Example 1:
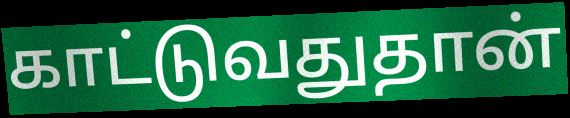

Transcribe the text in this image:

காட்டுவதுதான்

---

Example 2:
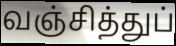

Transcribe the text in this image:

வஞ்சித்துப்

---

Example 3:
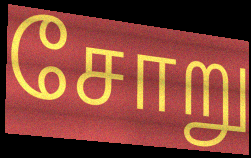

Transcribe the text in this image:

சோறு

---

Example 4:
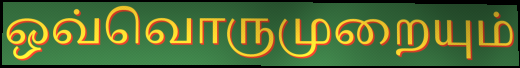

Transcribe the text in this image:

ஒவ்வொருமுறையும்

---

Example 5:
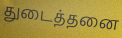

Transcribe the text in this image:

துடைத்தனை